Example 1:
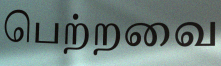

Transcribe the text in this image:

பெற்றவை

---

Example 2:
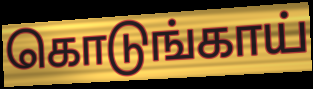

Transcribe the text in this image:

கொடுங்காய்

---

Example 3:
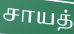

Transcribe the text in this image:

சாயத்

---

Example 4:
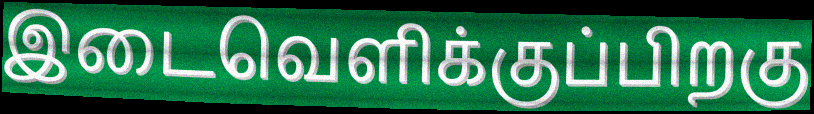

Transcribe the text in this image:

இடைவெளிக்குப்பிறகு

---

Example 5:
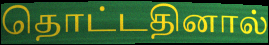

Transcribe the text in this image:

தொட்டதினால்